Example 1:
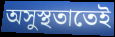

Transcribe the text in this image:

অসুস্থতাতেই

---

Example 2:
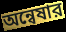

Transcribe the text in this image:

অন্বেষার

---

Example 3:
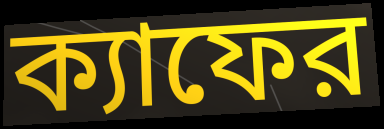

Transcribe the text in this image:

ক্যাফের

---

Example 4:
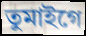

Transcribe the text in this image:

তুমাইগে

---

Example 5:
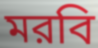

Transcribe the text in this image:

মরবি